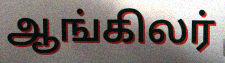
ஆங்கிலர்